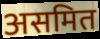
असमित